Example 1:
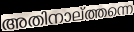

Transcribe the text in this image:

അതിനാല്ത്തന്നെ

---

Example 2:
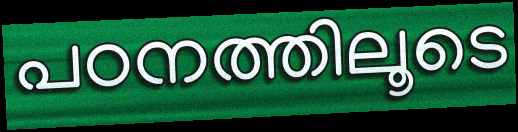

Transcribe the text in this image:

പഠനത്തിലൂടെ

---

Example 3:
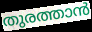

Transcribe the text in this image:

തുരത്താൻ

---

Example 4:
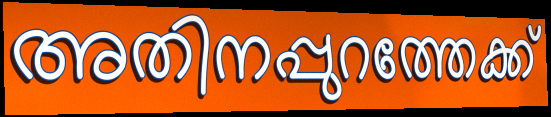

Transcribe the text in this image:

അതിനപ്പുറത്തേക്ക്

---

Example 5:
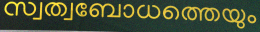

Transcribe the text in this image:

സ്വത്വബോധത്തെയും